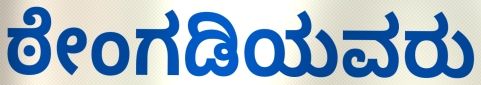
ಠೇಂಗಡಿಯವರು